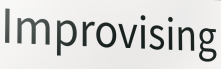
Improvising